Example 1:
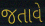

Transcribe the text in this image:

જતાવે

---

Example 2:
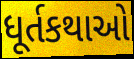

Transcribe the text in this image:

ધૂર્તકથાઓ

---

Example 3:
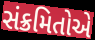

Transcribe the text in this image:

સંક્રમિતોએ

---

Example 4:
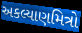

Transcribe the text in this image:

અકલ્યાણમિત્રો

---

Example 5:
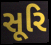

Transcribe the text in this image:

સૂરિ